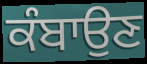
ਕੰਬਾਉਣ